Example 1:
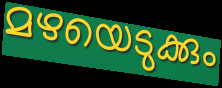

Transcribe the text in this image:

മഴയെടുക്കും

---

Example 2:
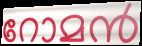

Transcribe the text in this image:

റോമൻ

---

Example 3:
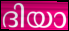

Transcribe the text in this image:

ദിയാ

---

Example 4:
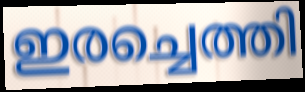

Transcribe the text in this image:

ഇരച്ചെത്തി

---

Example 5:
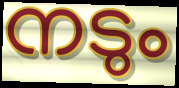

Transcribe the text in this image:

നടും